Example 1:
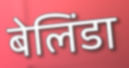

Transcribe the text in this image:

बेलिंडा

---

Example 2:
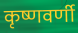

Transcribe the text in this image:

कृष्णवर्णी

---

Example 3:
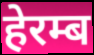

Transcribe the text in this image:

हेरम्ब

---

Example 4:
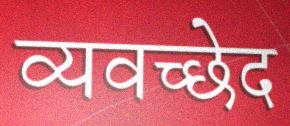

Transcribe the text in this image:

व्यवच्छेद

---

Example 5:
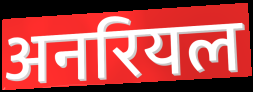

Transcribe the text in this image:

अनरियल